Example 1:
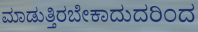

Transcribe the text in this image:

ಮಾಡುತ್ತಿರಬೇಕಾದುದರಿಂದ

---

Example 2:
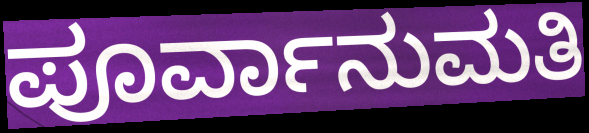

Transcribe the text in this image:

ಪೂರ್ವಾನುಮತಿ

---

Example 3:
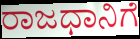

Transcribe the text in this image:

ರಾಜಧಾನಿಗೆ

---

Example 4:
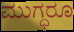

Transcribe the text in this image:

ಮುಗ್ಧರೂ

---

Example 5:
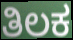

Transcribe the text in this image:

ತಿಲಕ